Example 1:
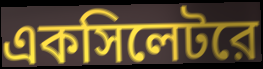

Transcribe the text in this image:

একসিলেটরে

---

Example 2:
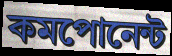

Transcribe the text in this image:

কমপোনেন্ট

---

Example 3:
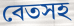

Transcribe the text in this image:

বেতসহ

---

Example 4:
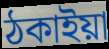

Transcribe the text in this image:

ঠকাইয়া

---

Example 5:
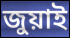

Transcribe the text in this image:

জুয়াই